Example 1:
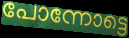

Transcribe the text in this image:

പോന്നോട്ടെ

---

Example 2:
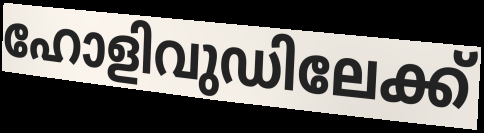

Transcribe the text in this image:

ഹോളിവുഡിലേക്ക്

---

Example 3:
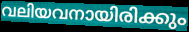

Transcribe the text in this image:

വലിയവനായിരിക്കും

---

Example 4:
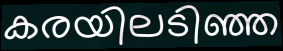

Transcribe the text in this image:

കരയിലടിഞ്ഞ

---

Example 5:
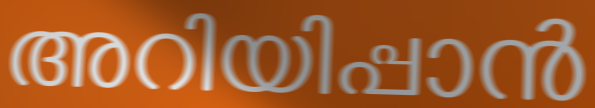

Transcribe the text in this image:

അറിയിപ്പാൻ